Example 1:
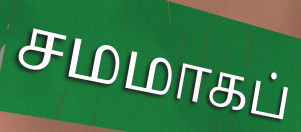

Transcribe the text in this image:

சமமாகப்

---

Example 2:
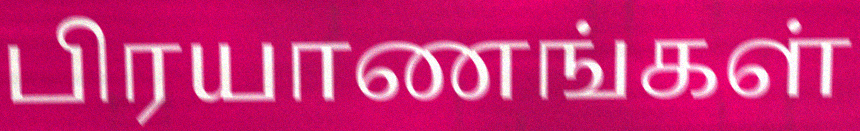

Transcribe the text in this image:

பிரயாணங்கள்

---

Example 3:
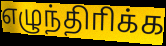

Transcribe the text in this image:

எழுந்திரிக்க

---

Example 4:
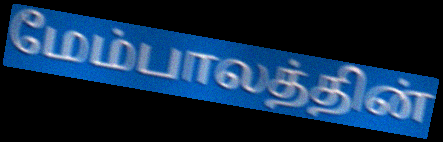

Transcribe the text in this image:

மேம்பாலத்தின்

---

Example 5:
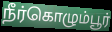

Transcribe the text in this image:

நீர்கொழும்பூர்